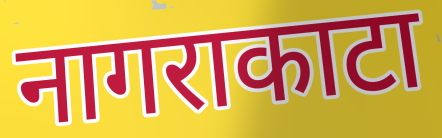
नागराकाटा